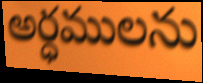
అర్ధములను